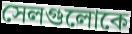
সেলগুলোকে